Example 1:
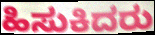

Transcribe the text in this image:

ಹಿಸುಕಿದರು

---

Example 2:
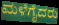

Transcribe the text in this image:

ಮಳೆಗೈದರು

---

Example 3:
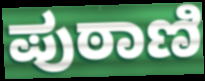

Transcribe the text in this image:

ಪುಠಾಣಿ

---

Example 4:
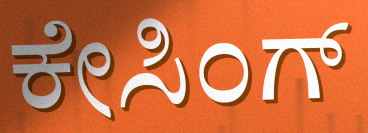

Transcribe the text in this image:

ಕೇಸಿಂಗ್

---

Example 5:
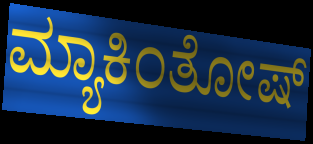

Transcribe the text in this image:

ಮ್ಯಾಕಿಂತೋಷ್